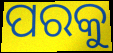
ପରକୁ